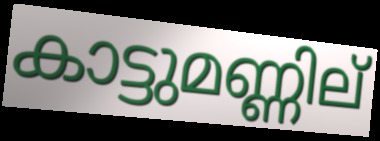
കാട്ടുമണ്ണില്